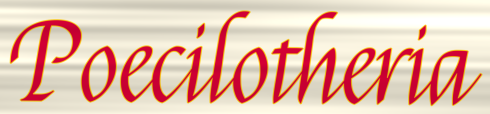
Poecilotheria